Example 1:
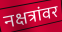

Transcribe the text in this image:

नक्षत्रांवर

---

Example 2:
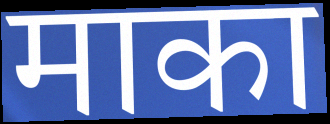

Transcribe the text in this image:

माका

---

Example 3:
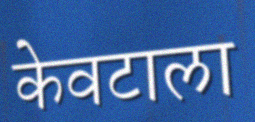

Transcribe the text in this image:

केवटाला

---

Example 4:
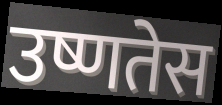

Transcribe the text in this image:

उष्णतेस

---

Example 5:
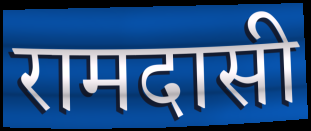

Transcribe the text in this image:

रामदासी